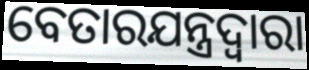
ବେତାରଯନ୍ତ୍ରଦ୍ୱାରା